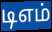
டிஎம்